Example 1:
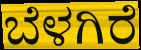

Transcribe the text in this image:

ಬೆಳಗಿರೆ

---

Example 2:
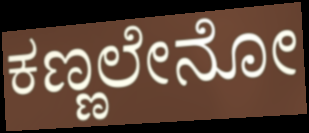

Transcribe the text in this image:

ಕಣ್ಣಲೇನೋ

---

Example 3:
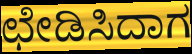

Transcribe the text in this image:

ಛೇಡಿಸಿದಾಗ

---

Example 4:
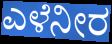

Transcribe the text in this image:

ಎಳೆನೀರ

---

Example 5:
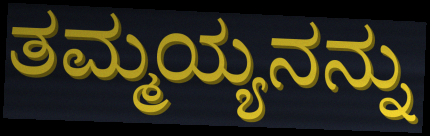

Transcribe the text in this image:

ತಮ್ಮಯ್ಯನನ್ನು